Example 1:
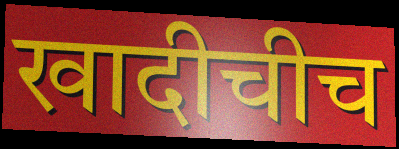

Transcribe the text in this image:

खादीचीच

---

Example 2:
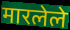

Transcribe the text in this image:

मारलेले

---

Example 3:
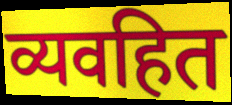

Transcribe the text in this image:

व्यवहित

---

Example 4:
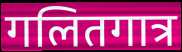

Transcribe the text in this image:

गलितगात्र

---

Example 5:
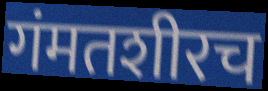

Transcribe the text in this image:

गंमतशीरच